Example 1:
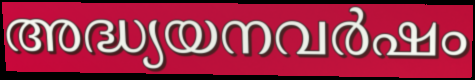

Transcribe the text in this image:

അദ്ധ്യയനവർഷം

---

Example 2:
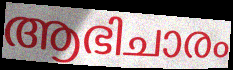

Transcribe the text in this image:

ആഭിചാരം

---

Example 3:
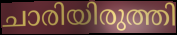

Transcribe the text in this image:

ചാരിയിരുത്തി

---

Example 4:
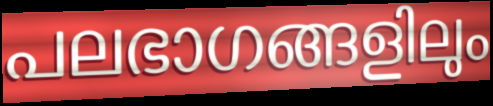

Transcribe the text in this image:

പലഭാഗങ്ങളിലും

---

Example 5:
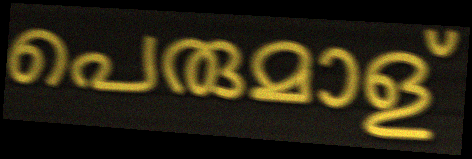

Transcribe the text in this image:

പെരുമാള്